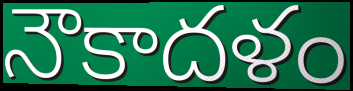
నౌకాదళం